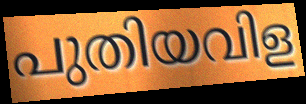
പുതിയവിള